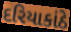
દરિયાકાંઠે